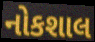
નોકશાલ